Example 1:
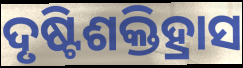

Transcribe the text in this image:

ଦୃଷ୍ଟିଶକ୍ତିହ୍ରାସ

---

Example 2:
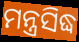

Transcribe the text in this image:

ମନ୍ତ୍ରସିଦ୍ଧ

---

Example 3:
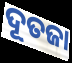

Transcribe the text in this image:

ଦୂତଜା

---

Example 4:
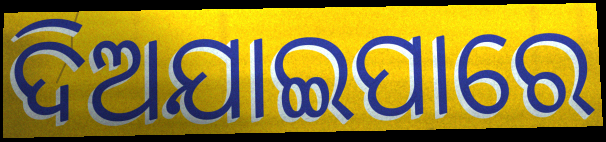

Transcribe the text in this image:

ଦିଅଯାଇପାରେ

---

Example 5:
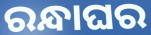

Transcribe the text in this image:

ରନ୍ଧାଘର